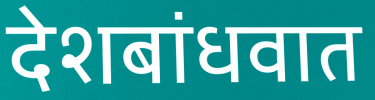
देशबांधवात